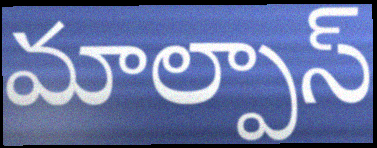
మాల్పాస్